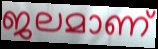
ജലമാണ്